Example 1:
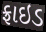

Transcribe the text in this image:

ફ્રાઇડ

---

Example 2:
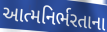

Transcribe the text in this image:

આત્મનિર્ભરતાના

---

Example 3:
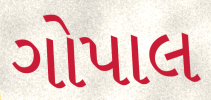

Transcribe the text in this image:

ગોપાલ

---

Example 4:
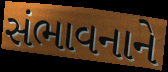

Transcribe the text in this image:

સંભાવનાને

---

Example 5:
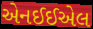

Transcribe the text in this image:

એનઈઈએલ